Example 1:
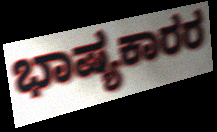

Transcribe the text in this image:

ಭಾಷ್ಯಕಾರರ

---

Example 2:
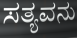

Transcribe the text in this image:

ಸತ್ಯವನು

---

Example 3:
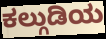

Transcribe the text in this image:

ಕಲ್ಗುಡಿಯ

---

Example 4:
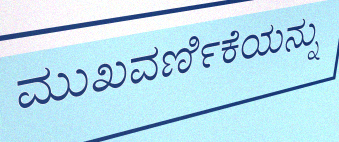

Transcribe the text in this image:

ಮುಖವರ್ಣಿಕೆಯನ್ನು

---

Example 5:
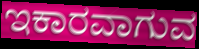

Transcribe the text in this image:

ಇಕಾರವಾಗುವ